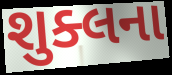
શુક્લના